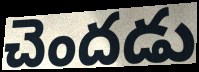
చెందడు